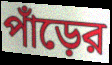
পাঁড়ের